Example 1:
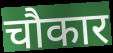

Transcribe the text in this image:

चौकार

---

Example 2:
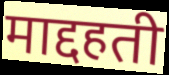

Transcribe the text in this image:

माद्दहती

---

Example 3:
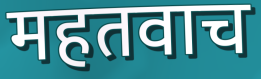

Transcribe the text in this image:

महतवाच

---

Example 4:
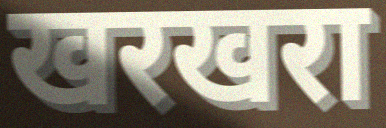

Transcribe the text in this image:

खरखरा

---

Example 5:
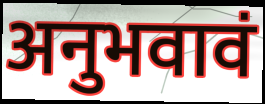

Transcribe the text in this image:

अनुभवावं